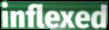
inflexed